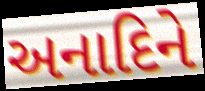
અનાદિને